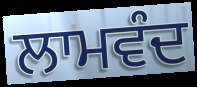
ਲਾਮਵੰਦ